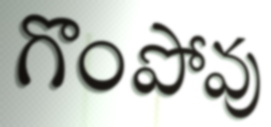
గొంపోవు